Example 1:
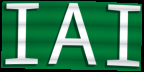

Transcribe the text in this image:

IAI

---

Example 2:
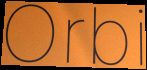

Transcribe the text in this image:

Orbi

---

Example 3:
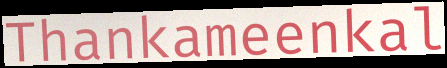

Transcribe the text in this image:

Thankameenkal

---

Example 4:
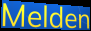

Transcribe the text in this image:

Melden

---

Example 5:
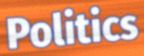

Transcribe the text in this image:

Politics